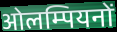
ओलम्पियनों